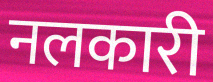
नलकारी